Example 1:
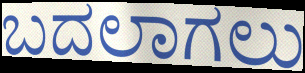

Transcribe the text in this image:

ಬದಲಾಗಲು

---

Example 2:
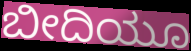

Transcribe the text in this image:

ಬೀದಿಯೂ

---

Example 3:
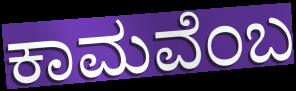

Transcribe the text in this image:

ಕಾಮವೆಂಬ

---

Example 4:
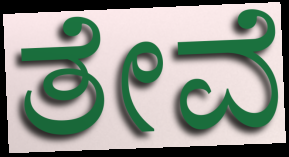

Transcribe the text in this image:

ತೇವೆ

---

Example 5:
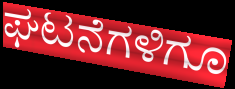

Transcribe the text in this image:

ಘಟನೆಗಳಿಗೂ